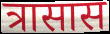
त्रासास